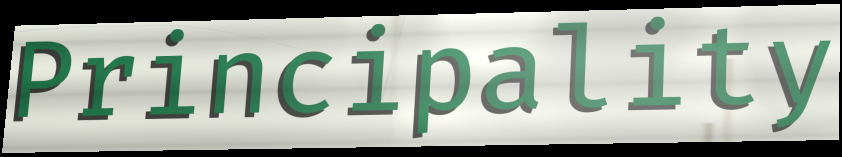
Principality